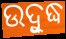
ଉଦ୍ବୁଦ୍ଧ